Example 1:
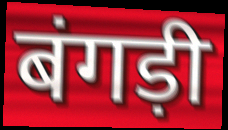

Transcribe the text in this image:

बंगड़ी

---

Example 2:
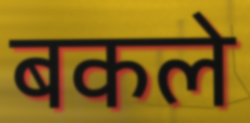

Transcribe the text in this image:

बकले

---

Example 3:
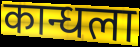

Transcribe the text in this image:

कान्धला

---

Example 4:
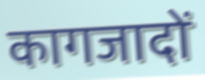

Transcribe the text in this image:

कागजादों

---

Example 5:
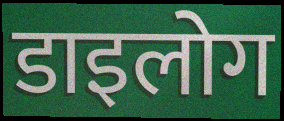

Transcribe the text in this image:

डाइलोग